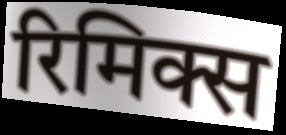
रिमिक्स